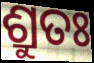
ଶ୍ରୁତଃ